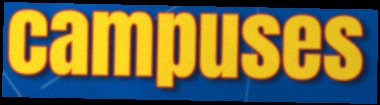
campuses